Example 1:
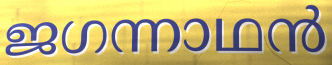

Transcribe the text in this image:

ജഗന്നാഥൻ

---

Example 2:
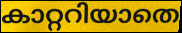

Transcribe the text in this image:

കാറ്ററിയാതെ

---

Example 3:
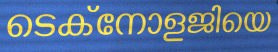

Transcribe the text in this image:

ടെക്‌നോളജിയെ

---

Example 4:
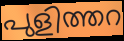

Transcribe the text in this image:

പുളിത്തറ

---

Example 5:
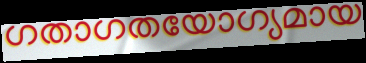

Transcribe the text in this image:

ഗതാഗതയോഗ്യമായ